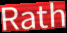
Rath